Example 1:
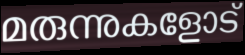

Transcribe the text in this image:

മരുന്നുകളോട്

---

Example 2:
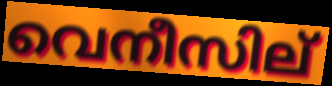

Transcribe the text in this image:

വെനീസില്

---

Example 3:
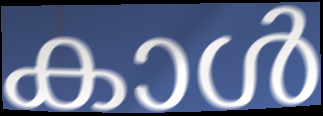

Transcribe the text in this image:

കാൾ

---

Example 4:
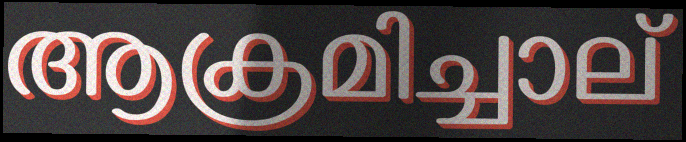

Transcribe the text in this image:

ആക്രമിച്ചാല്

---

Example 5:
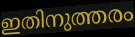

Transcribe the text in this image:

ഇതിനുത്തരം